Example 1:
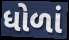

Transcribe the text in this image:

ધોળાં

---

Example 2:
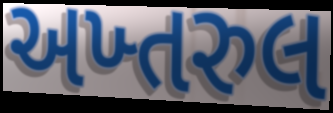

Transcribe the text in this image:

અખ્તરુલ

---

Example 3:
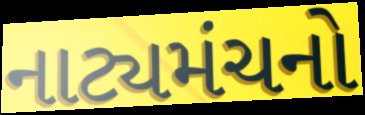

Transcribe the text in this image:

નાટ્યમંચનો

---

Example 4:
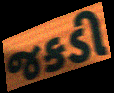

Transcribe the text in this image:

જકડી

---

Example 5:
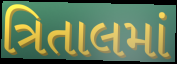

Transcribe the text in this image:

ત્રિતાલમાં